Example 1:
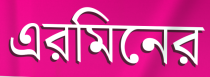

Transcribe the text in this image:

এরমিনের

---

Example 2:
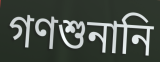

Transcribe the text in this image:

গণশুনানি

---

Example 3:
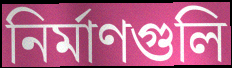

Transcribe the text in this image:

নির্মাণগুলি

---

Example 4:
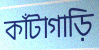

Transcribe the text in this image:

কাঁটাগাড়ি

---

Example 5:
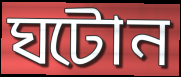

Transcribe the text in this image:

ঘটোন